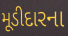
મૂડીદારના